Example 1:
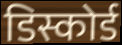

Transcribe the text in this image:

डिस्कोर्ड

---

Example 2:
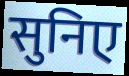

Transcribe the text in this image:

सुनिए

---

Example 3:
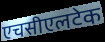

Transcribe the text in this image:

एचसीएलटेक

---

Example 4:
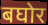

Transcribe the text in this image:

बघोर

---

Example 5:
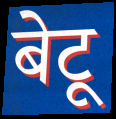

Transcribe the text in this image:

बेटू